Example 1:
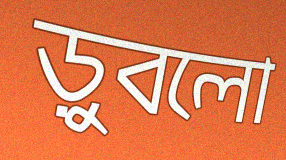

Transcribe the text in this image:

ড়ুবলো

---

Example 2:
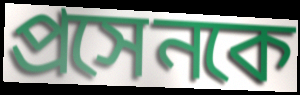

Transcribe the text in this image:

প্রসেনকে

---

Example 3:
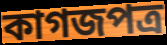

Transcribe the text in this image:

কাগজপত্র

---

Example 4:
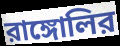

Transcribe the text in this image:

রাঙ্গোলির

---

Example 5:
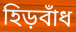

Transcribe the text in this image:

হিড়বাঁধ